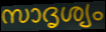
സാദൃശ്യം